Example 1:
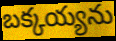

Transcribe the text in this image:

బక్కయ్యను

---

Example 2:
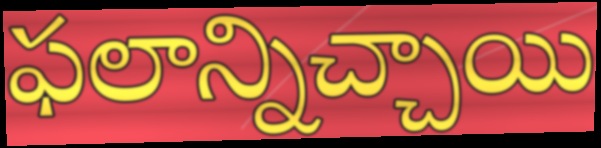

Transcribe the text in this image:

ఫలాన్నిచ్చాయి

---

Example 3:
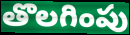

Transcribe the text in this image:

తొలగింపు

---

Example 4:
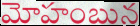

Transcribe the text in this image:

మోహంబున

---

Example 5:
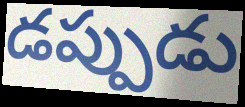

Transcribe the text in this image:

డప్పుడు